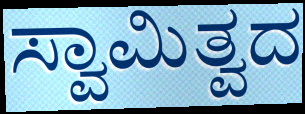
ಸ್ವಾಮಿತ್ವದ